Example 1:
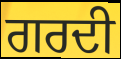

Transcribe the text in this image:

ਗਰਦੀ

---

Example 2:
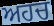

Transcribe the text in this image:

ਅਹਚ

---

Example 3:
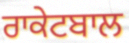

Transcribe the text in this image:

ਰਾਕੇਟਬਾਲ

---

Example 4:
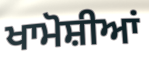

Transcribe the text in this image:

ਖਾਮੋਸ਼ੀਆਂ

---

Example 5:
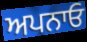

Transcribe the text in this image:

ਅਪਨਾਓ